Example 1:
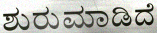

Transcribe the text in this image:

ಶುರುಮಾಡಿದೆ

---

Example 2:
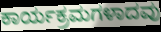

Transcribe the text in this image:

ಕಾರ್ಯಕ್ರಮಗಳಾದವು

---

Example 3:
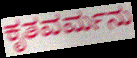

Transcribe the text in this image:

ಕೃತವರ್ಮನು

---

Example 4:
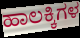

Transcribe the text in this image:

ಹಾಲಕ್ಕಿಗಳ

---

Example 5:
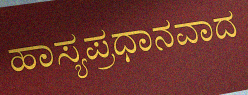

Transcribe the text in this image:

ಹಾಸ್ಯಪ್ರಧಾನವಾದ